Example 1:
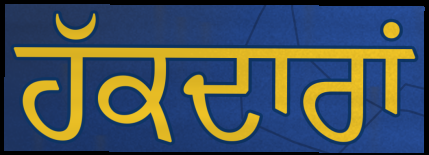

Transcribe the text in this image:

ਹੱਕਦਾਰਾਂ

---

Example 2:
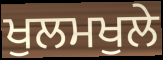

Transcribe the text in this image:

ਖੁਲਮਖੁਲੇ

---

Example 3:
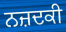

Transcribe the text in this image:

ਨਜ਼ਦਕੀ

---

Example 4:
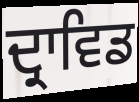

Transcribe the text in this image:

ਦ੍ਰਾਵਿਡ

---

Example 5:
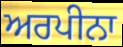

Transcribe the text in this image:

ਅਰਪੀਨਾ